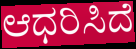
ಆಧರಿಸಿದೆ